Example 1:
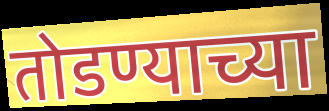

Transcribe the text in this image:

तोडण्याच्या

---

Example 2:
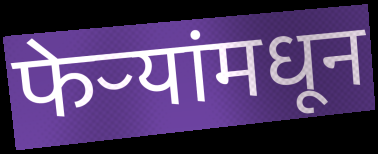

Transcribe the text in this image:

फेऱ्यांमधून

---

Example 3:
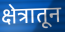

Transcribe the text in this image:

क्षेत्रातून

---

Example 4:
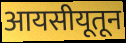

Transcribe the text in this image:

आयसीयूतून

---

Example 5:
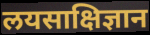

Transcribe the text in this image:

लयसाक्षिज्ञान